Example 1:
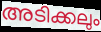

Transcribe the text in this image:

അടിക്കലും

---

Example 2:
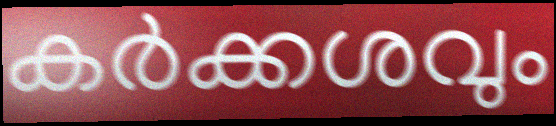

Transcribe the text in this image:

കർക്കശവും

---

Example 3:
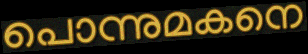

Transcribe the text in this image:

പൊന്നുമകനെ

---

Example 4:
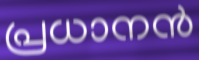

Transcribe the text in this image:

പ്രധാനൻ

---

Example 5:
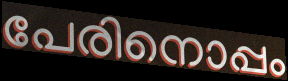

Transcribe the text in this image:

പേരിനൊപ്പം